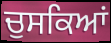
ਚੁਸਕਿਆਂ